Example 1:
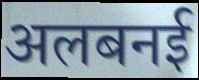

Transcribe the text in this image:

अलबनई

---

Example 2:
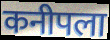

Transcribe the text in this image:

कनीपला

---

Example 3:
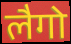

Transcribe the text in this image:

लैगो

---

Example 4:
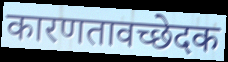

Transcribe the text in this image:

कारणतावच्छेदक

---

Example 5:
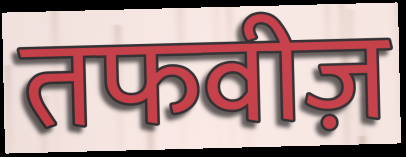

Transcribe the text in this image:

तफवीज़